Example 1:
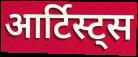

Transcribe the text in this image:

आर्टिस्ट्स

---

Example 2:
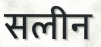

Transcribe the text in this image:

सलीन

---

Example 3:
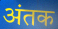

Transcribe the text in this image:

अंतक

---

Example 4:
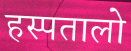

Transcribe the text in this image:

हस्पतालो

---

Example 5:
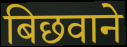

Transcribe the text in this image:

बिछवाने